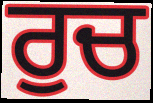
ਰੁਚ